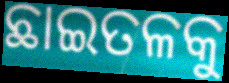
ଛାଇତଳକୁ